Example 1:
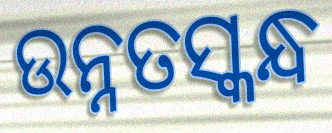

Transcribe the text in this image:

ଉନ୍ନତସ୍କନ୍ଧ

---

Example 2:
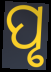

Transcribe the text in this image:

ପୃ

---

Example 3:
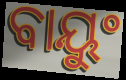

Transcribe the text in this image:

ବାୟୁଂ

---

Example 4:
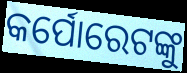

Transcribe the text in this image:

କର୍ପୋରେଟଙ୍କୁ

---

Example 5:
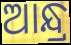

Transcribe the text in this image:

ଆନ୍ଧ୍ର